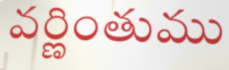
వర్ణింతుము